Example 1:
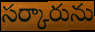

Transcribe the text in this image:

సర్కారును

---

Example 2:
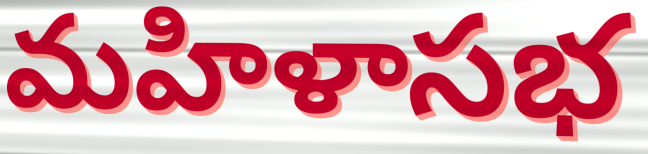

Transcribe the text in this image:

మహిళాసభ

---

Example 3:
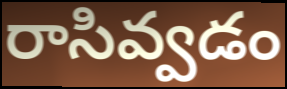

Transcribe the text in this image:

రాసివ్వడం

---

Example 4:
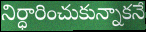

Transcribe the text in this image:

నిర్ధారించుకున్నాకనే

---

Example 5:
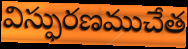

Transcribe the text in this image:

విస్ఫురణముచేత